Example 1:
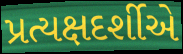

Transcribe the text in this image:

પ્રત્યક્ષદર્શીએ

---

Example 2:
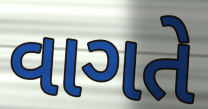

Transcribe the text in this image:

વાગતે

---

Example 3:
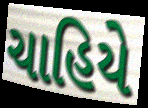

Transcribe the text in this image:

ચાહિયે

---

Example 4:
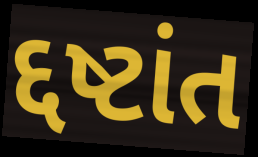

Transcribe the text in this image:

દ્દષ્ટાંત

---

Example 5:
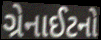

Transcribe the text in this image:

ગ્રેનાઈટનો